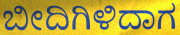
ಬೀದಿಗಿಳಿದಾಗ